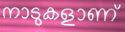
നാടുകളാണ്